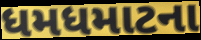
ધમધમાટના